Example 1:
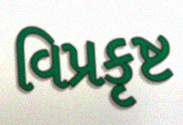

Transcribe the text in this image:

વિપ્રકૃષ્ટ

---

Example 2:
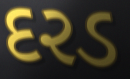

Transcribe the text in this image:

દરડ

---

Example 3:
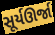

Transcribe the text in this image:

સૂર્યઊર્જા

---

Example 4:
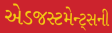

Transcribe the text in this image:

એડજસ્ટમેન્ટ્સની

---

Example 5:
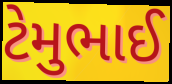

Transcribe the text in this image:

ટેમુભાઈ